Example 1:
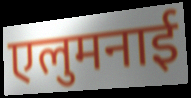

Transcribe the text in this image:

एलुमनाई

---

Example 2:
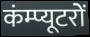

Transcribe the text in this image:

कंम्प्यूटरों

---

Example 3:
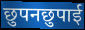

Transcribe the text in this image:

छुपनछुपाई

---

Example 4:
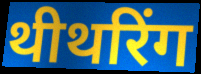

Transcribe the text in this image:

थीथरिंग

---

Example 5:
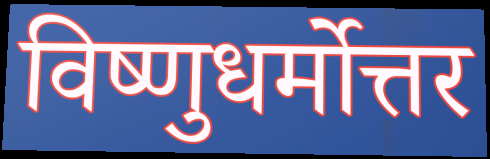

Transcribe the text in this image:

विष्णुधर्मोत्तर